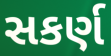
સકર્ણ